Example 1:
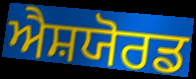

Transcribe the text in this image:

ਐਸ਼ਯੋਰਡ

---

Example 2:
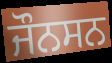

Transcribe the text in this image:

ਜੌਨਸਨ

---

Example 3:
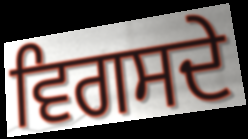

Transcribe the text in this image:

ਵਿਗਸਦੇ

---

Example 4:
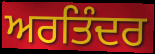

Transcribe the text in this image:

ਅਰਤਿੰਦਰ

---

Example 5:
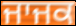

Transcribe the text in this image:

ਜਾਜਕ